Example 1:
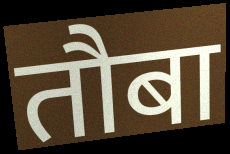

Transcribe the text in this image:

तौबा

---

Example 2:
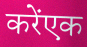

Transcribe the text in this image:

करेंएक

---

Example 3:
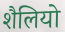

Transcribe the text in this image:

शैलियो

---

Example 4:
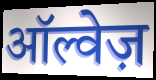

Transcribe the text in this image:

ऑल्वेज़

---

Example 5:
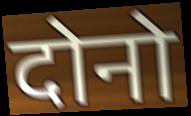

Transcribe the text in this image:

दोनो